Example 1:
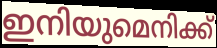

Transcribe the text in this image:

ഇനിയുമെനിക്ക്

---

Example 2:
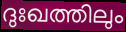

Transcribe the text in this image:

ദുഃഖത്തിലും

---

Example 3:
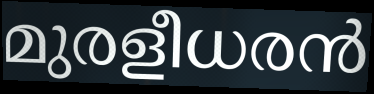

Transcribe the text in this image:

മുരളീധരൻ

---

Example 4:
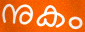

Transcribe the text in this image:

നുകം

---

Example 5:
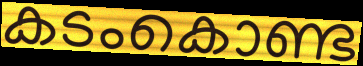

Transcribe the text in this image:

കടംകൊണ്ട